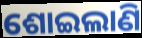
ଶୋଇଲାଣି